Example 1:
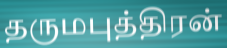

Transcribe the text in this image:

தருமபுத்திரன்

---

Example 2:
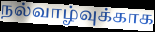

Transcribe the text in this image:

நல்வாழ்வுக்காக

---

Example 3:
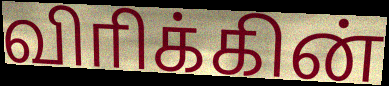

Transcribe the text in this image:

விரிக்கின்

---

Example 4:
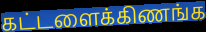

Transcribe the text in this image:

கட்டளைக்கிணங்க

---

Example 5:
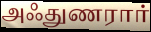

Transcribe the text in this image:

அஃதுணரார்